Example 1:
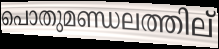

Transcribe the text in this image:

പൊതുമണ്ഡലത്തില്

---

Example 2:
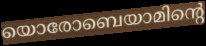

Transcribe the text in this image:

യൊരോബെയാമിന്റെ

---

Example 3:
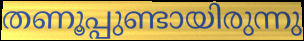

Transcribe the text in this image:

തണൂപ്പുണ്ടായിരുന്നു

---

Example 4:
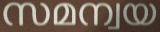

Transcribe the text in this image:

സമന്വയ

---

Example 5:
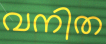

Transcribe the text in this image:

വനിത